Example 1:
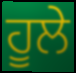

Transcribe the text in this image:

ਹੂਲੇ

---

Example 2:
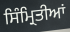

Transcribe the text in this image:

ਸਿੰਮ੍ਰਿਤੀਆਂ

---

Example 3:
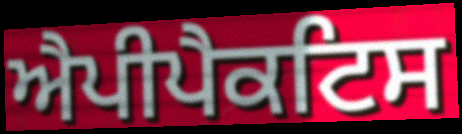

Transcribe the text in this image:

ਐਪੀਪੈਕਟਿਸ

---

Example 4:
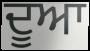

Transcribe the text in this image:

ਦੂਆ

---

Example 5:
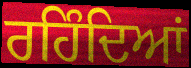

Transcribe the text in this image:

ਰਹਿੰਦਿਆਂ